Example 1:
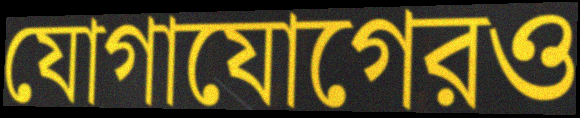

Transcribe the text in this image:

যোগাযোগেরও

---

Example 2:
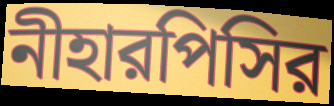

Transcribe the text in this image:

নীহারপিসির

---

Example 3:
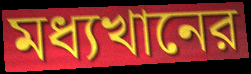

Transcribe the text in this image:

মধ্যখানের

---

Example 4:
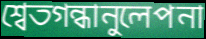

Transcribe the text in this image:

শ্বেতগন্ধানুলেপনা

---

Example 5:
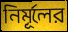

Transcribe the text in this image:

নির্মূলের